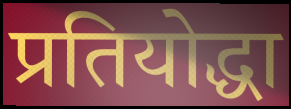
प्रतियोद्धा